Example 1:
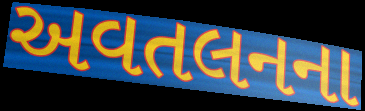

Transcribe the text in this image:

અવતલનના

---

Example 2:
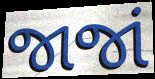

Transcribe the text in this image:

જાજાં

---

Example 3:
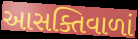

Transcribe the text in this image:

આસક્તિવાળાં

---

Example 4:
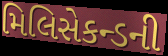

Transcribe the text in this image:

મિલિસેકન્ડની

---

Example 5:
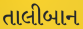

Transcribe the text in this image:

તાલીબાન